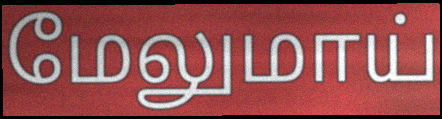
மேலுமாய்